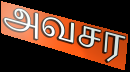
அவசர